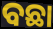
ବଛା